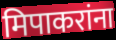
मिपाकरांना